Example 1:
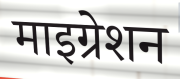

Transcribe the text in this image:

माइग्रेशन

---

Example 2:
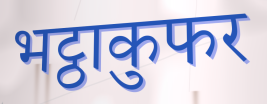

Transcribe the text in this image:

भट्ठाकुफर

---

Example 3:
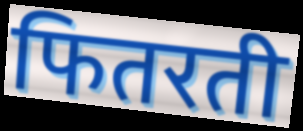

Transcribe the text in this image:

फितरती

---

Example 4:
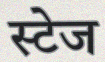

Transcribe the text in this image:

स्‍टेज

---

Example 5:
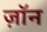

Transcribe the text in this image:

ज़ॉन